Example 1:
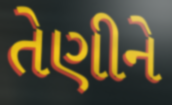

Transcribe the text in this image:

તેણીને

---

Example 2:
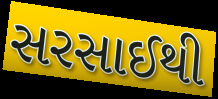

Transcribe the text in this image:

સરસાઈથી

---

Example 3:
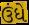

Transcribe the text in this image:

ઉંધે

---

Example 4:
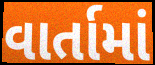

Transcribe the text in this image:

વાર્તામાં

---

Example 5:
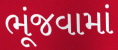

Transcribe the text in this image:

ભૂંજવામાં